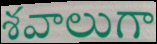
శవాలుగా